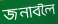
জনাবলৈ